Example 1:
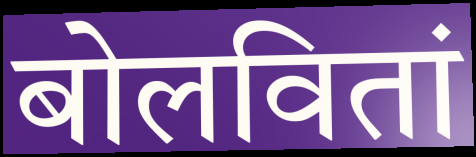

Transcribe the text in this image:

बोलवितां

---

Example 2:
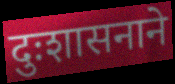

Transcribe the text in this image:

दुःशासनाने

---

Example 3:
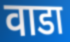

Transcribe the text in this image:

वाडा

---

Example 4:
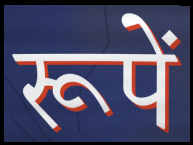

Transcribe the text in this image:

रूपें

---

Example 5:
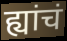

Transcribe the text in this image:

ह्यांचं